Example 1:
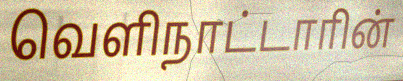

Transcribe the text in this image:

வெளிநாட்டாரின்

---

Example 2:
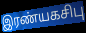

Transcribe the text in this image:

இரண்யகசிபு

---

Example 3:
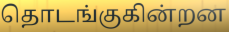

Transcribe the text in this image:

தொடங்குகின்றன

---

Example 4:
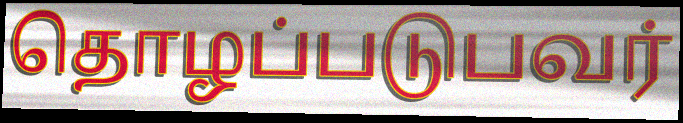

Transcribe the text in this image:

தொழப்படுபவர்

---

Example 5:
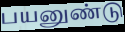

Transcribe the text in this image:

பயனுண்டு